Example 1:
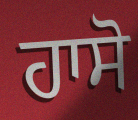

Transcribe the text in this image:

ਹਾਸੋ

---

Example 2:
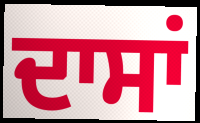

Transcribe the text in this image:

ਦਾਸਾਂ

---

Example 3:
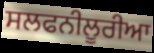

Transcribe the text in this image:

ਸਲਫਨੀਲੂਰੀਆ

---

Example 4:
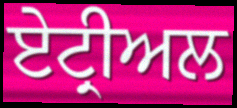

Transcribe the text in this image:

ਏਟ੍ਰੀਅਲ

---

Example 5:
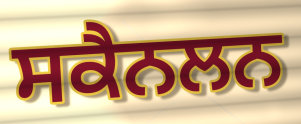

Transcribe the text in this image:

ਸਕੈਨਲਨ